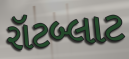
રૉટબ્લાટ